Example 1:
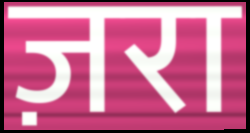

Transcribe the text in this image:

ज़रा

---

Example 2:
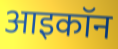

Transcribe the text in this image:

आइकॉन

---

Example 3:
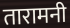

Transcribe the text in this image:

तारामनी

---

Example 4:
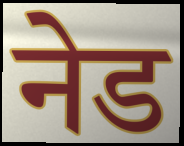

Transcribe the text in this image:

नेड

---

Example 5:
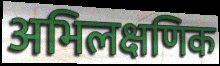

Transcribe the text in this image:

अभिलक्षणिक